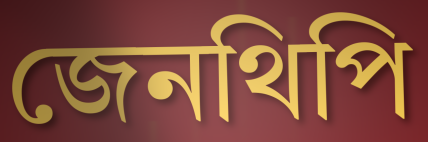
জেনথিপি